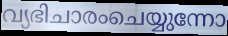
വ്യഭിചാരംചെയ്യുന്നോ